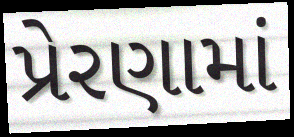
પ્રેરણામાં